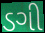
ડગી